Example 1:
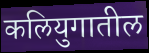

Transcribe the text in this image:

कलियुगातील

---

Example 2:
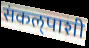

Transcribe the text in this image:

संकल्पाशी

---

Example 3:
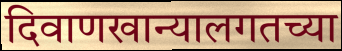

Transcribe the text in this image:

दिवाणखान्यालगतच्या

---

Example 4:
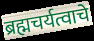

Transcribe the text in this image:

ब्रह्मचर्यत्वाचे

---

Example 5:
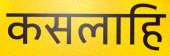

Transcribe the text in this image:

कसलाहि